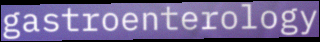
gastroenterology